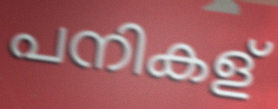
പനികള്